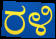
ರಳಿ